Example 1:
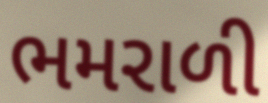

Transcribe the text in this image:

ભમરાળી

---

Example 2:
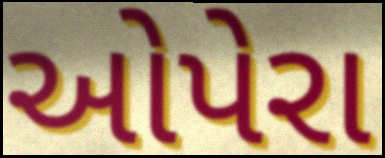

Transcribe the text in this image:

ઓપેરા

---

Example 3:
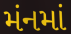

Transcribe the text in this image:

મંનમાં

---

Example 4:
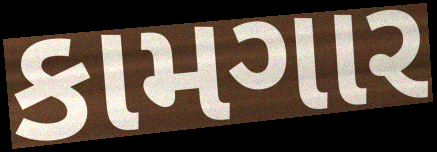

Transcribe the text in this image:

કામગાર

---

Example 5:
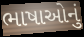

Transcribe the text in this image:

ભાષાઓનું